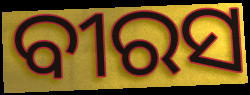
ବୀରସ